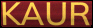
KAUR